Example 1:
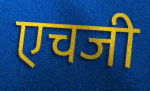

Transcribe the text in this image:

एचजी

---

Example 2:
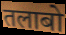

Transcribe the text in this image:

तलाबो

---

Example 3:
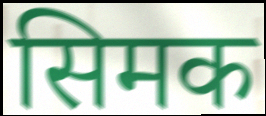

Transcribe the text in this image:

सिमक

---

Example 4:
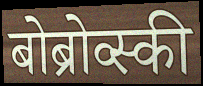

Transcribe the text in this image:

बोब्रोव्स्की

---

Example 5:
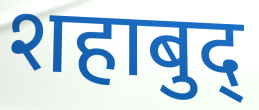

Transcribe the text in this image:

शहाबुद्